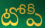
టోపీ